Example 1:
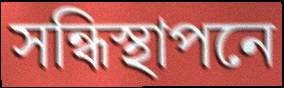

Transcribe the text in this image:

সন্ধিস্থাপনে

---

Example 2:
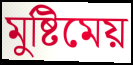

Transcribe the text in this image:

মুষ্টিমেয়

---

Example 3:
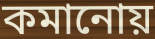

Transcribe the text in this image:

কমানোয়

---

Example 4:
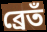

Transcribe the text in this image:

ব্রেতঁ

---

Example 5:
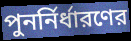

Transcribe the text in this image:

পুনর্নির্ধারণের